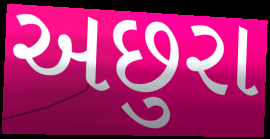
અછુરા